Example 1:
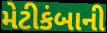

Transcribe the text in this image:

મેટીકંબાની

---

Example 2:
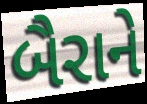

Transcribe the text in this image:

બૈરાને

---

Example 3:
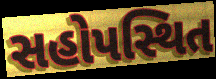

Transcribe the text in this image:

સહોપસ્થિત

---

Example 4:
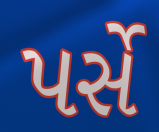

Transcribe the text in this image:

પર્સે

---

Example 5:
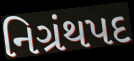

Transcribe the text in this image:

નિગ્રંથપદ